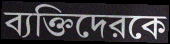
ব্যক্তিদেরকে